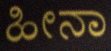
ಹೀನಾ